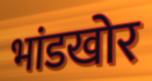
भांडखोर